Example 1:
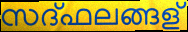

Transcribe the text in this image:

സദ്ഫലങ്ങള്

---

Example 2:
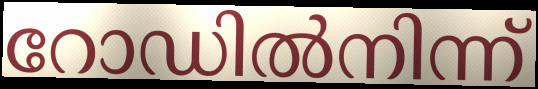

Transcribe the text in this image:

റോഡിൽനിന്ന്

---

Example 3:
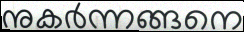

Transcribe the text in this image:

നുകർന്നങ്ങനെ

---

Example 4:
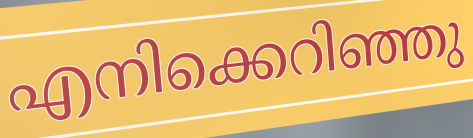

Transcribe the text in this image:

എനിക്കെറിഞ്ഞു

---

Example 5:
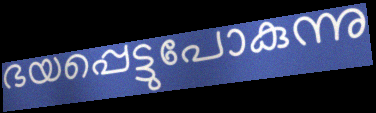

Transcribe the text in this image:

ഭയപ്പെട്ടുപോകുന്നു